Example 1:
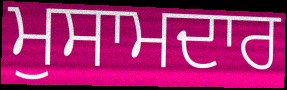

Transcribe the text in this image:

ਮੁਸਾਮਦਾਰ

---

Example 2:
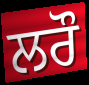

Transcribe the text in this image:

ਲਰੌ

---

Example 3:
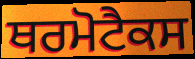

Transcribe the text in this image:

ਥਰਮੋਟੈਕਸ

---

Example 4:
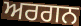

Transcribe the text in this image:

ਅਰਗਨ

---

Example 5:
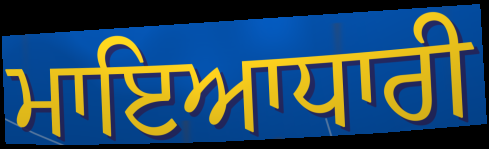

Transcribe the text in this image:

ਮਾਇਆਧਾਰੀ